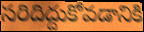
సరిదిద్దుకోవడానికి